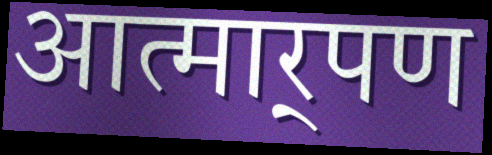
आत्मार्पण